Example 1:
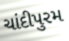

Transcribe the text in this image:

ચાંદીપુરમ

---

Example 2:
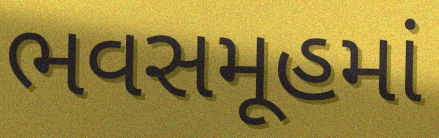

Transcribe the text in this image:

ભવસમૂહમાં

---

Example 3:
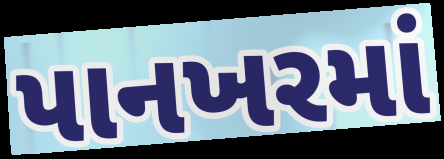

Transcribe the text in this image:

પાનખરમાં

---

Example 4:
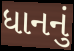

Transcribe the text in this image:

ધાનનું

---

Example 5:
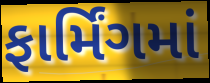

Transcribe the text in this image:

ફાર્મિંગમાં